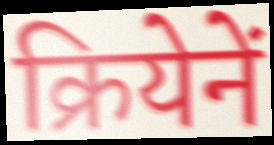
क्रियेनें